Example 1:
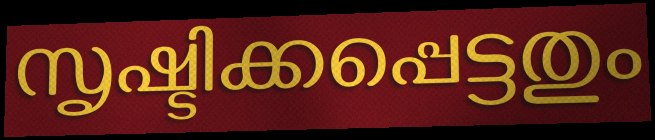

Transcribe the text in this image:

സൃഷ്ടിക്കപ്പെട്ടതും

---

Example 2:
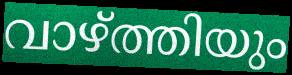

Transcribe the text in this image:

വാഴ്ത്തിയും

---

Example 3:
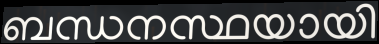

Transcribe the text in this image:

ബന്ധനസ്ഥയായി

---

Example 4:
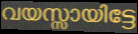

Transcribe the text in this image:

വയസ്സായിട്ടേ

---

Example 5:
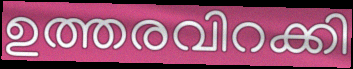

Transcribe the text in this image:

ഉത്തരവിറക്കി